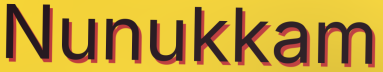
Nunukkam